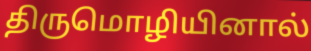
திருமொழியினால்